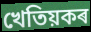
খেতিয়কৰ